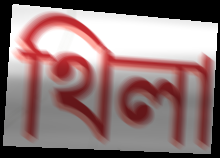
থিলা